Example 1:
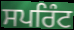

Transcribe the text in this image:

ਸਪਰਿੰਟ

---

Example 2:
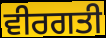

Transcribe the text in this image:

ਵੀਰਗਤੀ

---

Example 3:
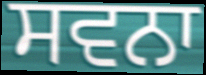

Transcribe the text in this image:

ਸਵਨਾ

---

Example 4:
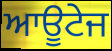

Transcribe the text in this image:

ਆਊਟੇਜ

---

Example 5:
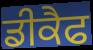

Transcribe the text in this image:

ਡੀਕੈਫ